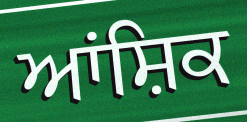
ਆਂਸ਼ਿਕ